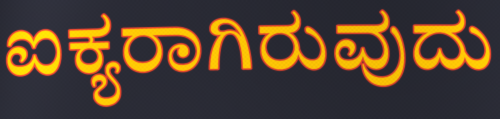
ಐಕ್ಯರಾಗಿರುವುದು